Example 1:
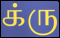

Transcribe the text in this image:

க்ரு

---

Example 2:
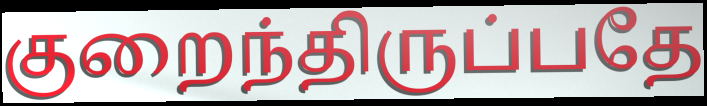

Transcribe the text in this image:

குறைந்திருப்பதே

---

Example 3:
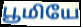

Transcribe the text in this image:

பூமியே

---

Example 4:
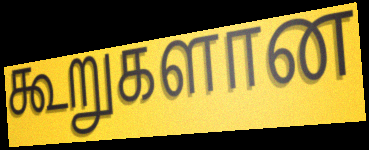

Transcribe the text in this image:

கூறுகளான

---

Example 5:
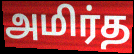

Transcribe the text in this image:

அமிர்த